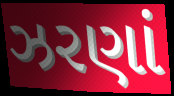
ઝરણાં